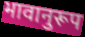
भावानुरूप